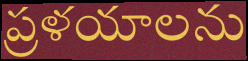
ప్రళయాలను